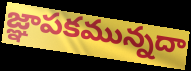
జ్ఞాపకమున్నదా